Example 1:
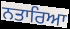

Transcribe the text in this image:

ਨਤਾਰਿਆ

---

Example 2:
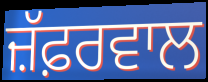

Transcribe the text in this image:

ਜ਼ੱਫ਼ਰਵਾਲ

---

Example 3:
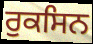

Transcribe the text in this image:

ਰੁਕਸਿਨ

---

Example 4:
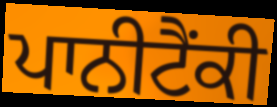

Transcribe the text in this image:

ਪਾਨੀਟੈਂਕੀ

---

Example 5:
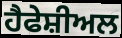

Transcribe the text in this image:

ਹੈਫੇਸ਼ੀਅਲ